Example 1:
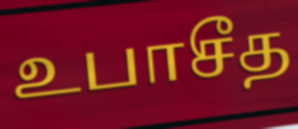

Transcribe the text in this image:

உபாசீத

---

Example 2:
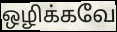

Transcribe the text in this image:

ஒழிக்கவே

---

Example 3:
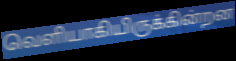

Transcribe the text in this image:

வெளியாகியிருக்கின்றன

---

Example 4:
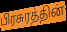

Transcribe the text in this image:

பிரசுரத்தின்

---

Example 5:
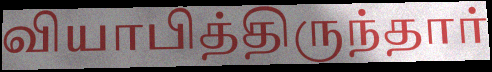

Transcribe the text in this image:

வியாபித்திருந்தார்